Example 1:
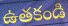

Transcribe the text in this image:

ఉతకండి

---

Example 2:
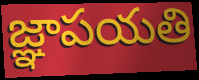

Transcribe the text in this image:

జ్ఞాపయతి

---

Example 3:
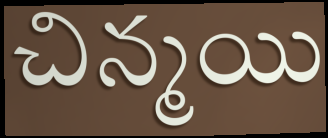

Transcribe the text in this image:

చిన్మయి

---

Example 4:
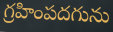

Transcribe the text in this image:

గ్రహింపదగును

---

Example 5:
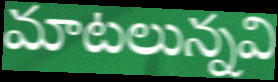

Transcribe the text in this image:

మాటలున్నవి